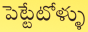
పెట్టేటోళ్ళు